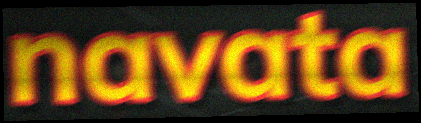
navata